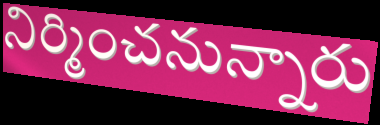
నిర్మించనున్నారు